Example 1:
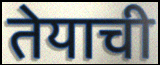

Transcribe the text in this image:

तेयाची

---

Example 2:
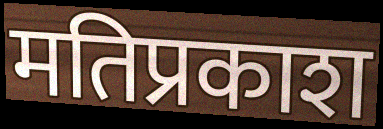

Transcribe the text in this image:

मतिप्रकाश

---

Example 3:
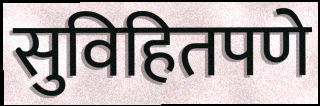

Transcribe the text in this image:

सुविहितपणे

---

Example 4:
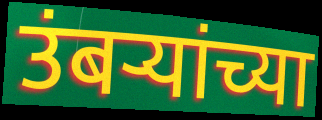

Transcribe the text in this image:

उंबऱ्यांच्या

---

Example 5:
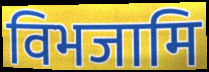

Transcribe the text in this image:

विभजामि